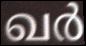
ഖർ